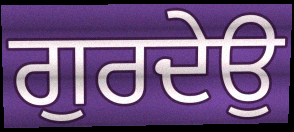
ਗੁਰਦੇਉ